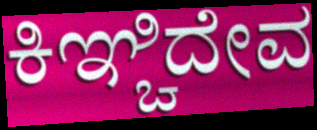
ಕಿಞ್ಚಿದೇವ